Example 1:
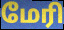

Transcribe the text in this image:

மேரி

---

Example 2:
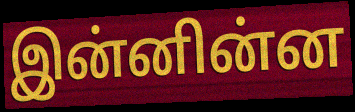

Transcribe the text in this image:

இன்னின்ன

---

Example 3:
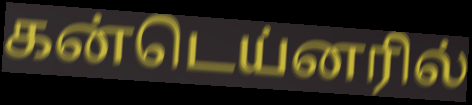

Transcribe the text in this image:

கன்டெய்னரில்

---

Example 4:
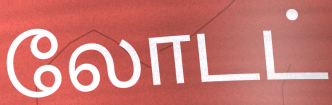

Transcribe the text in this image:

லோடட்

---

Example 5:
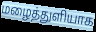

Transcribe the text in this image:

மழைத்துளியாக